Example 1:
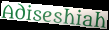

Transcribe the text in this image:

Adiseshiah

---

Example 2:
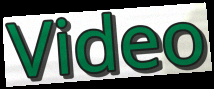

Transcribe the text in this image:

Video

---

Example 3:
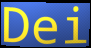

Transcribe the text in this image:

Dei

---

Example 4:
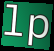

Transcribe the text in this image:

lp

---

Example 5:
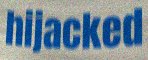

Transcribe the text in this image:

hijacked